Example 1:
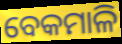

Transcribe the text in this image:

ବେକମାଳି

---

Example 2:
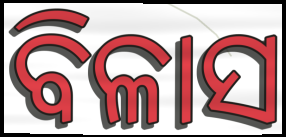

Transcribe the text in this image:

ବିଳାସ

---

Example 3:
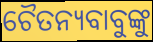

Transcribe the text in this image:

ଚୈତନ୍ୟବାବୁଙ୍କୁ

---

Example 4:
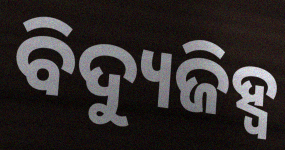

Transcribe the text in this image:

ବିଦ୍ୟୁଜିହ୍ୱ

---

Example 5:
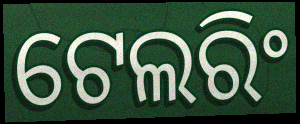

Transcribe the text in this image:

ଟେଲରିଂ